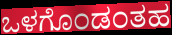
ಒಳಗೊಂಡಂತಹ